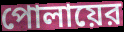
পোলায়ের